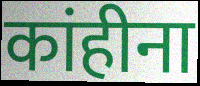
कांहीना